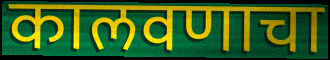
कालवणाचा